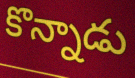
కొన్నాడు